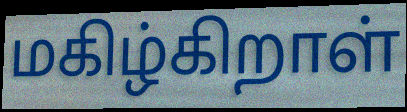
மகிழ்கிறாள்